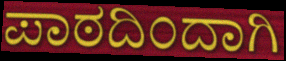
ಪಾಠದಿಂದಾಗಿ